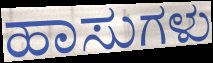
ಹಾಸುಗಳು